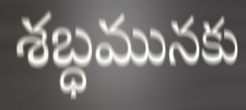
శబ్ధమునకు